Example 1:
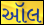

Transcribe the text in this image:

ઑલ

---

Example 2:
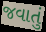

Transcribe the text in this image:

જવાતું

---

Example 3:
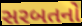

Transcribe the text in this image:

સરબતનો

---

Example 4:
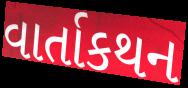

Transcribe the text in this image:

વાર્તાકથન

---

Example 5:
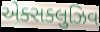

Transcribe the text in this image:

એક્સક્લુઝિવ